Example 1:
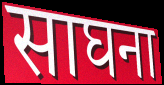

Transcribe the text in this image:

साघना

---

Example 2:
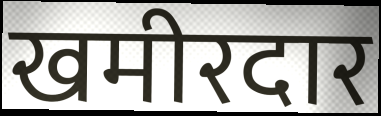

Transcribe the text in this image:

खमीरदार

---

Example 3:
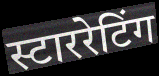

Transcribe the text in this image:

स्टाररेटिंग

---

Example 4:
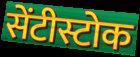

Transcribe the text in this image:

सेंटीस्टोक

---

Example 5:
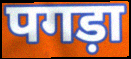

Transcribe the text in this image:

पगड़ा